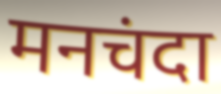
मनचंदा